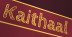
Kaithaal